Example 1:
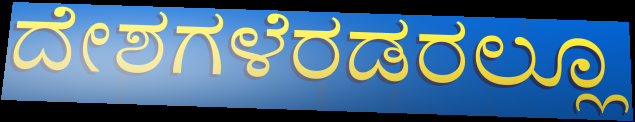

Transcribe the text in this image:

ದೇಶಗಳೆರಡರಲ್ಲೂ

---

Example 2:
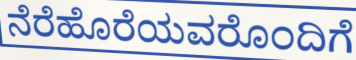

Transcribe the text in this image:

ನೆರೆಹೊರೆಯವರೊಂದಿಗೆ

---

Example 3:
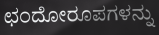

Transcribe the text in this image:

ಛಂದೋರೂಪಗಳನ್ನು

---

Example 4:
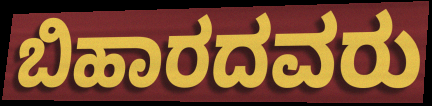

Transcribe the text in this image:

ಬಿಹಾರದವರು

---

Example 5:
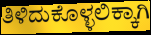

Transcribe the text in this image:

ತಿಳಿದುಕೊಳ್ಳಲಿಕ್ಕಾಗಿ